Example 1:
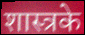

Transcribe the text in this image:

शास्त्रके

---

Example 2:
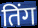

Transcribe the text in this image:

तिंग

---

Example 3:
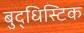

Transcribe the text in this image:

बुद्धिस्टिक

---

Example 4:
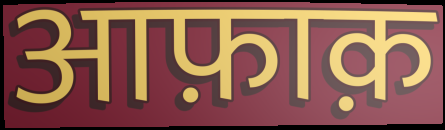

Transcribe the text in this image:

आफ़ाक़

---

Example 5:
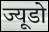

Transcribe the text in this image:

ज्यूडो